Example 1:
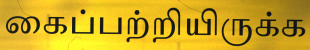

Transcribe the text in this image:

கைப்பற்றியிருக்க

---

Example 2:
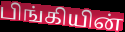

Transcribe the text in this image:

பிங்கியின்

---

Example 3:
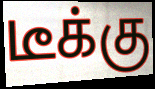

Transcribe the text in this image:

டீக்கு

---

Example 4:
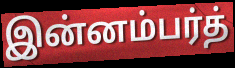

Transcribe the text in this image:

இன்னம்பர்த்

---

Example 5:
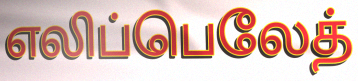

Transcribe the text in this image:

எலிப்பெலேத்